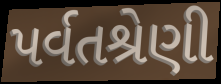
પર્વતશ્રેણી